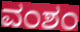
ವಂಶಂ